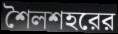
শৈলশহরের